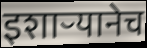
इशाऱ्यानेच